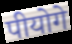
पीयोगे